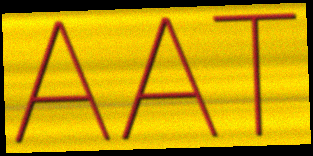
AAT